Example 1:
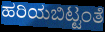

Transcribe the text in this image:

ಹರಿಯಬಿಟ್ಟಂತೆ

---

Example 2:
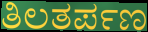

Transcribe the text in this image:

ತಿಲತರ್ಪಣ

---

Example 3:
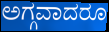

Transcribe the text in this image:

ಅಗ್ಗವಾದರೂ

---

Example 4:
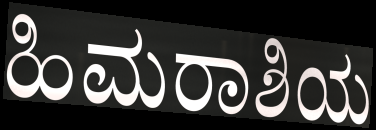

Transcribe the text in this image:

ಹಿಮರಾಶಿಯ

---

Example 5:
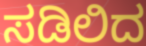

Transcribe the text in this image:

ಸಡಿಲಿದ